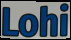
Lohi